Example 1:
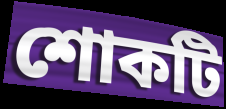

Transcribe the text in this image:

শোকটি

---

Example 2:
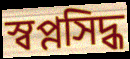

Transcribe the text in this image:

স্বপ্নসিদ্ধ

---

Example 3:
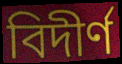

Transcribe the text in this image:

বিদীর্ণ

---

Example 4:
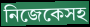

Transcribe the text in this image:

নিজেকেসহ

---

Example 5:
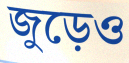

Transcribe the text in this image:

জুড়েও